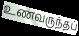
உணவருந்தப்